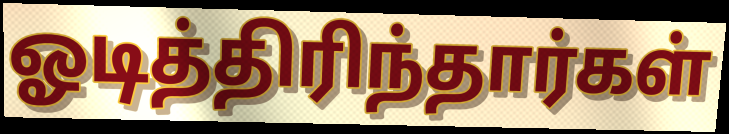
ஓடித்திரிந்தார்கள்